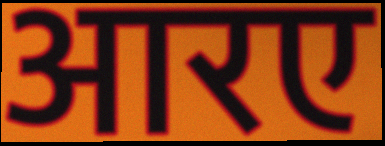
आरए